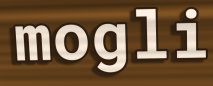
mogli